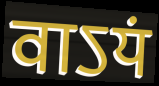
वाऽयं